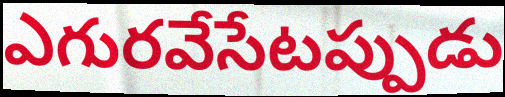
ఎగురవేసేటప్పుడు